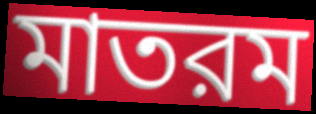
মাতরম